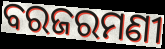
ବରଜରମଣୀ